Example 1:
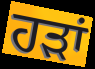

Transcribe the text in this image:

ਹੜਾਂ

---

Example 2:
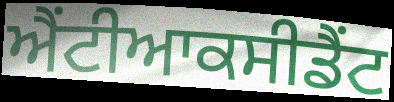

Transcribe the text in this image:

ਐਂਟੀਆਕਸੀਡੈਂਟ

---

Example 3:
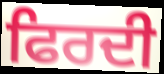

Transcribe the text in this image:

ਫਿਰਦੀ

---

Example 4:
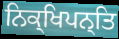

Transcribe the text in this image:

ਨਿਕ੍ਖਿਪਨ੍ਤਿ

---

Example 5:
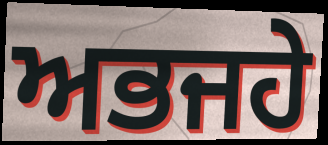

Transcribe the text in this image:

ਅਭਜਹੇ